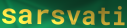
sarsvati